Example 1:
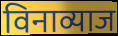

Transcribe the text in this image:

विनाव्याज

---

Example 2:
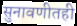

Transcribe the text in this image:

सुनावणीतही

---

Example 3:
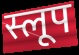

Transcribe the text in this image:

स्लूप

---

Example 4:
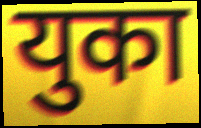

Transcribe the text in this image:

युका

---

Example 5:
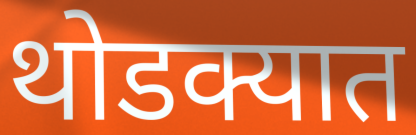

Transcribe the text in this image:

थोडक्यात